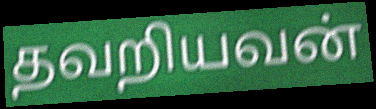
தவறியவன்